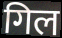
गिल